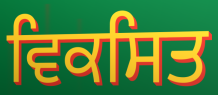
ਵਿਕਸਿਤ